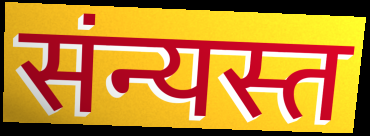
संन्यस्त